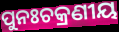
ପୁନଃଚକ୍ରଣୀୟ